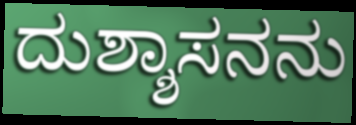
ದುಶ್ಶಾಸನನು